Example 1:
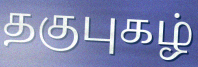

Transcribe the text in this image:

தகுபுகழ்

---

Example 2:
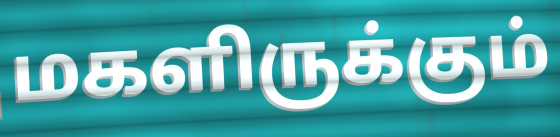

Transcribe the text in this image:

மகளிருக்கும்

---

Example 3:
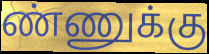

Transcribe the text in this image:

ண்ணுக்கு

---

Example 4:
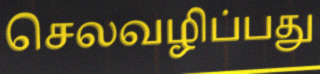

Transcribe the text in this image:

செலவழிப்பது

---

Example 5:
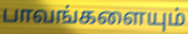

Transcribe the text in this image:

பாவங்களையும்